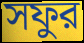
সফুর